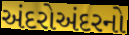
અંદરોઅંદરનો